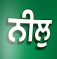
ਨੀਲੁ